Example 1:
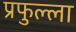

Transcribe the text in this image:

प्रफुल्ला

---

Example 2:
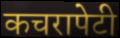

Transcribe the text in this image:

कचरापेटी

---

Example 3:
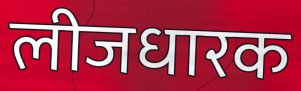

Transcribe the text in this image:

लीजधारक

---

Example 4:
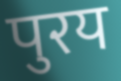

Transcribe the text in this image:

पुरय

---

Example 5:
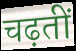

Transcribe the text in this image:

चढ़तीं